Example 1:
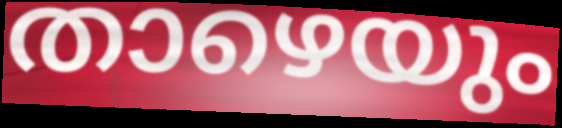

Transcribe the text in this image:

താഴെയും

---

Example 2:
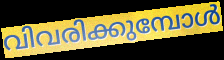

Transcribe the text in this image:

വിവരിക്കുമ്പോൾ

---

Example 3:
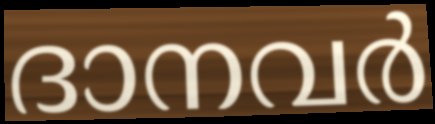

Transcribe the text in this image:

ദാനവർ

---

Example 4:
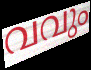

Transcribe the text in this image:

വവും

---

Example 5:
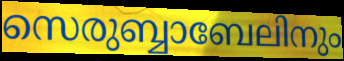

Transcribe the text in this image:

സെരുബ്ബാബേലിനും